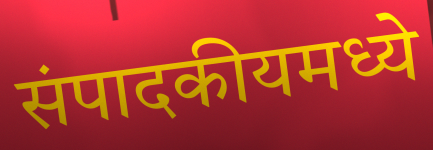
संपादकीयमध्ये